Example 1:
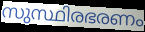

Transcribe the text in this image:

സുസ്ഥിരഭരണം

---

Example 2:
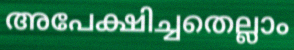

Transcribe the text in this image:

അപേക്ഷിച്ചതെല്ലാം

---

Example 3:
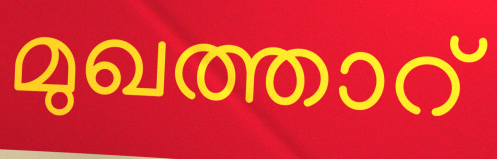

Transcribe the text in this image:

മുഖത്താറ്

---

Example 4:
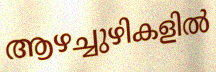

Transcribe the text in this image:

ആഴച്ചുഴികളിൽ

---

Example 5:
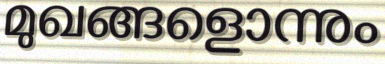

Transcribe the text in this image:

മുഖങ്ങളൊന്നും